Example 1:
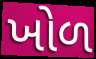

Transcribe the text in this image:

ખોળ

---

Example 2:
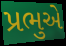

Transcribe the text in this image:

પ્રભુએ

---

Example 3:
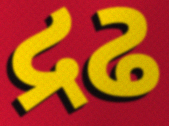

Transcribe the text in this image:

દ્રઢ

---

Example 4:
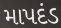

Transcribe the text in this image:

માપદંડ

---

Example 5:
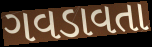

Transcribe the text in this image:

ગવડાવતા